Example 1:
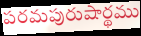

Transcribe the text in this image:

పరమపురుషార్థము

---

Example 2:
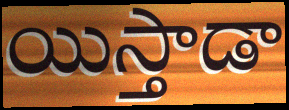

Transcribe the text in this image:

యిస్తాడా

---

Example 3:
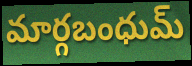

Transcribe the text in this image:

మార్గబంధుమ్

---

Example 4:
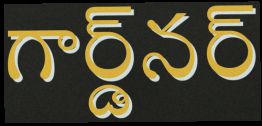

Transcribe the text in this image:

గార్డ్‌నర్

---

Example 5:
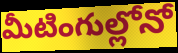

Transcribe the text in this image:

మీటింగుల్లోనో